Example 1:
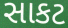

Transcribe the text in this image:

સાકટ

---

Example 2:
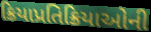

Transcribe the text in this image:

ક્રિયાપ્રતિક્રિયાઓની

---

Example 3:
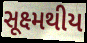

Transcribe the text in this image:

સૂક્ષ્મથીય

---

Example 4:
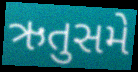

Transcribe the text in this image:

ઋતુસમે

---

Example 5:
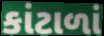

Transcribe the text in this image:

કાંટાળાં